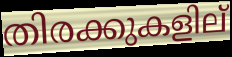
തിരക്കുകളില്